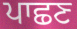
ਪਾਛਣ